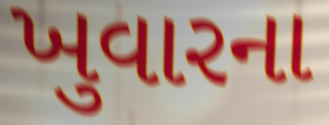
ખુવારના